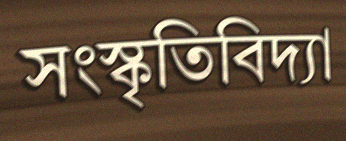
সংস্কৃতিবিদ্য়া